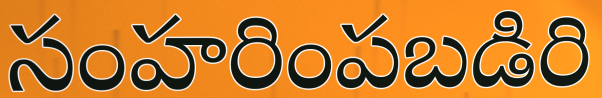
సంహరింపబడిరి